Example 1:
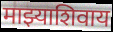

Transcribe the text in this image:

माझ्याशिवाय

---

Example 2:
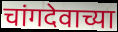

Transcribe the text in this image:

चांगदेवाच्या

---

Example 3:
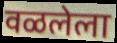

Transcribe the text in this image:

वळलेला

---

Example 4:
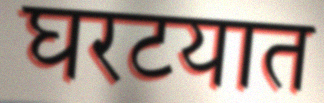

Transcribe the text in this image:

घरटयात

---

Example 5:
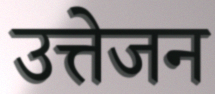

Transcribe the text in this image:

उत्तेजन